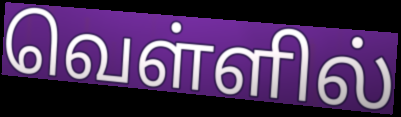
வெள்ளில்